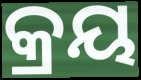
କ୍ରୟ